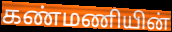
கண்மணியின்